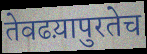
तेवढय़ापुरतेच